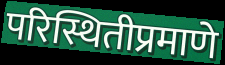
परिस्थितीप्रमाणे